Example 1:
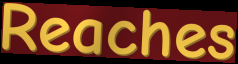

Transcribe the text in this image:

Reaches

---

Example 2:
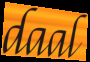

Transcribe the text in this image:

daal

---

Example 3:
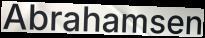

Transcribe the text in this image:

Abrahamsen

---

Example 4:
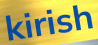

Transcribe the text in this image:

kirish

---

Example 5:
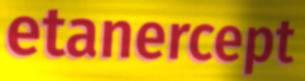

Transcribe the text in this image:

etanercept